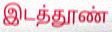
இடத்தூண்